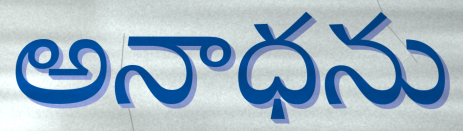
అనాధను